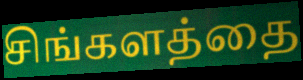
சிங்களத்தை